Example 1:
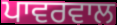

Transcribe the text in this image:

ਪਾਵਰਵਾਲ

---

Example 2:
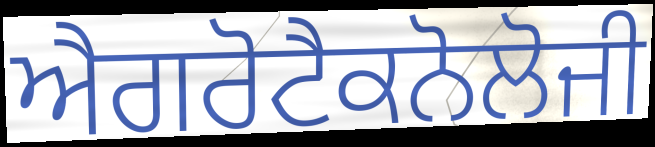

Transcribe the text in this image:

ਐਗਰੋਟੈਕਨੋਲੋਜੀ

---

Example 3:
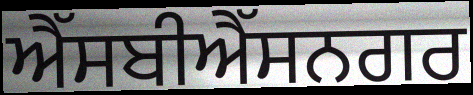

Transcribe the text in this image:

ਐੱਸਬੀਐੱਸਨਗਰ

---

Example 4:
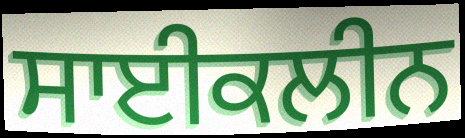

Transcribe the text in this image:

ਸਾਈਕਲੀਨ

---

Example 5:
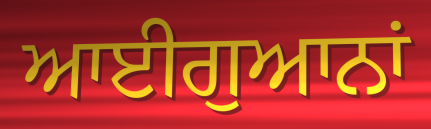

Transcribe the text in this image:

ਆਈਗੁਆਨਾਂ